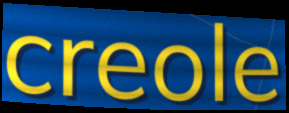
creole